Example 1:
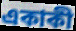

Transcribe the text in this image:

একাকী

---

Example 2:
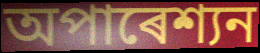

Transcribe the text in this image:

অপাৰেশ্যন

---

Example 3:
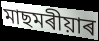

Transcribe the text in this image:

মাছমৰীয়াৰ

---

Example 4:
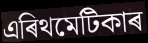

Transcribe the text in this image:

এৰিথমেটিকাৰ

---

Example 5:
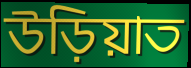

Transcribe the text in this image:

উড়িয়াত